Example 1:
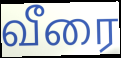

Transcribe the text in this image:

வீரை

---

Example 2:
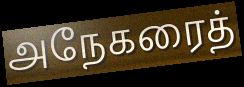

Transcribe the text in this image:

அநேகரைத்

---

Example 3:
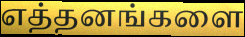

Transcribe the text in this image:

எத்தனங்களை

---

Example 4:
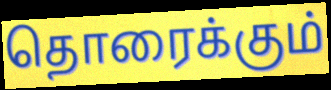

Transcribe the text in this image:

தொரைக்கும்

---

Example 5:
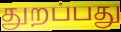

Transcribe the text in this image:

துறப்பது